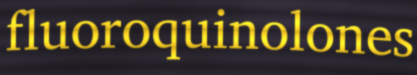
fluoroquinolones